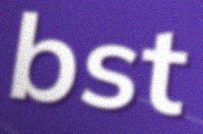
bst